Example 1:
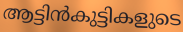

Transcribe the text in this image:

ആട്ടിൻകുട്ടികളുടെ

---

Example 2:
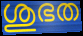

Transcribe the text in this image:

ശുഭത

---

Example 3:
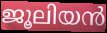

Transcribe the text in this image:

ജൂലിയൻ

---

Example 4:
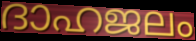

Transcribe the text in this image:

ദാഹജലം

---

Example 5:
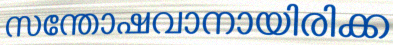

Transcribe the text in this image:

സന്തോഷവാനായിരിക്ക